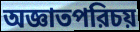
অজ্ঞাতপরিচয়